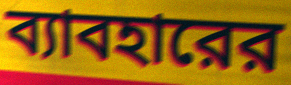
ব্যাবহারের